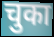
चुका